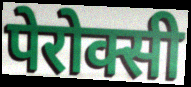
पेरोक्सी